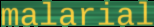
malarial